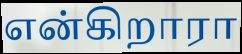
என்கிறாரா